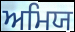
ਅਮਿਯ